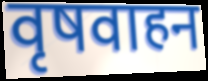
वृषवाहन